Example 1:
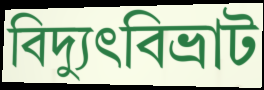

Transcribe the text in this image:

বিদ্যুৎবিভ্রাট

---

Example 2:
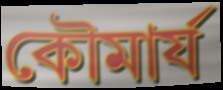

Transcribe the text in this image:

কৌমার্য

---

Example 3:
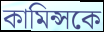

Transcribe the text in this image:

কামিন্সকে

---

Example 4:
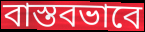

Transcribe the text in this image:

বাস্তবভাবে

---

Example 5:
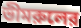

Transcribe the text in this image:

ভীমরুলের